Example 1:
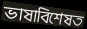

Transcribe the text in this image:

ভাষাবিশেষত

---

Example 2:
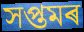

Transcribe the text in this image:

সপ্তমৰ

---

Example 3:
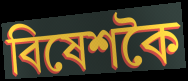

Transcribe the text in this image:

বিষেশকৈ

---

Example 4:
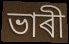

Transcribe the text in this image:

ভাৰী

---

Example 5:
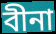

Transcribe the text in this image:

বীনা